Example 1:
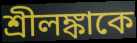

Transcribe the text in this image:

শ্রীলঙ্কাকে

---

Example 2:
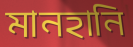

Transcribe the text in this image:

মানহানি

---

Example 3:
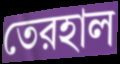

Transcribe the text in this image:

তেরহাল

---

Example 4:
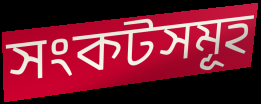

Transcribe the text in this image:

সংকটসমূহ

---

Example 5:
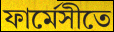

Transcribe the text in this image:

ফার্মেসীতে